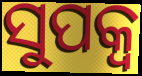
ସୁପକ୍ବ